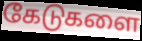
கேடுகளை